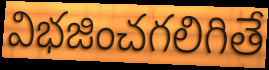
విభజించగలిగితే